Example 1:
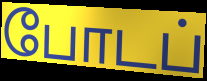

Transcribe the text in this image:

போடப்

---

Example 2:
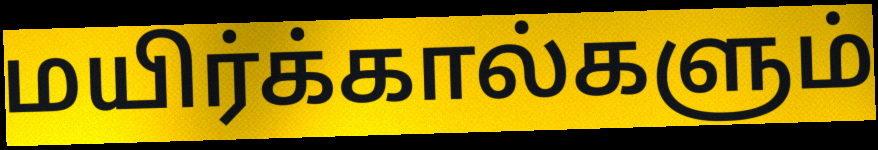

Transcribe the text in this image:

மயிர்க்கால்களும்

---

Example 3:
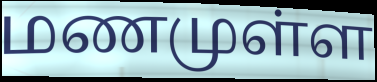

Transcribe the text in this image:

மணமுள்ள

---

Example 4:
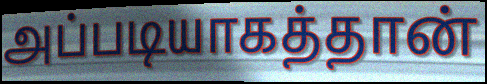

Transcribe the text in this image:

அப்படியாகத்தான்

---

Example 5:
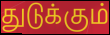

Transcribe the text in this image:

துடுக்கும்